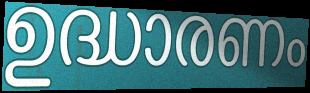
ഉദ്ധാരണം